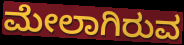
ಮೇಲಾಗಿರುವ